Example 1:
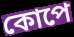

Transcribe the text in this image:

কোপে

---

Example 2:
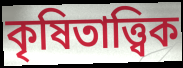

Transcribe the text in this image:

কৃষিতাত্ত্বিক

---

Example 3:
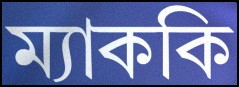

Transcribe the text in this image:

ম্যাককি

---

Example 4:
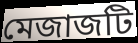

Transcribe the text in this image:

মেজাজটি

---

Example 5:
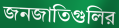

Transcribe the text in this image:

জনজাতিগুলির